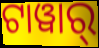
ଟାୱାର୍